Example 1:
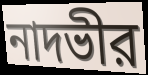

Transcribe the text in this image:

নাদভীর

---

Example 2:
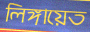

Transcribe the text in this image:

লিঙ্গায়েত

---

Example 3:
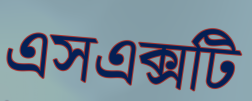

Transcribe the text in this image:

এসএক্সটি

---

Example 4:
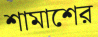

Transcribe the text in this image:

শামাশের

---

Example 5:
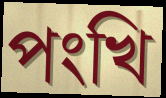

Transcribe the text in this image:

পংখি